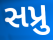
સપ્રુ